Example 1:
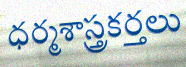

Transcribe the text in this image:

ధర్మశాస్త్రకర్తలు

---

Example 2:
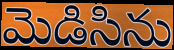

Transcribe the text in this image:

మెడిసిను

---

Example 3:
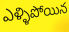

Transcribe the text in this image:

ఎళ్ళిపోయిన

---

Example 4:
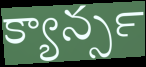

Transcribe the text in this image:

క్యాన్సర్‍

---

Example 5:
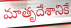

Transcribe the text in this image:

మాతృదేశానికే